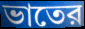
ভাতের